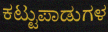
ಕಟ್ಟುಪಾಡುಗಳ